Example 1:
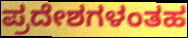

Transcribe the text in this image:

ಪ್ರದೇಶಗಳಂತಹ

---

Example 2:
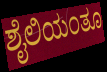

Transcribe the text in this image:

ಶೈಲಿಯಂತೂ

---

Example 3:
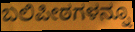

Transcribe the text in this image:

ಬಲಿಪೀಠಗಳನ್ನೂ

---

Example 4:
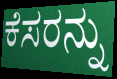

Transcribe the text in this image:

ಕೆಸರನ್ನು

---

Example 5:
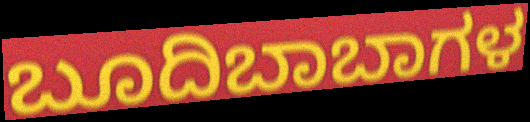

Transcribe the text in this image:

ಬೂದಿಬಾಬಾಗಳ